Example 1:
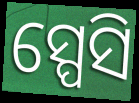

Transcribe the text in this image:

ସ୍ପେସି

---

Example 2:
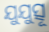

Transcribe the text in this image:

ଯୁଯୁତ୍ସୂ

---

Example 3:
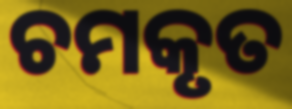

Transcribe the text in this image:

ଚମକୃତ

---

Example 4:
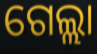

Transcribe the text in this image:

ଗେଲ୍ଲା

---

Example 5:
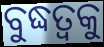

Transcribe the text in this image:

ବୁଦ୍ଧତ୍ଵକୁ